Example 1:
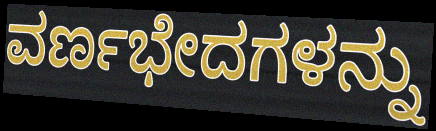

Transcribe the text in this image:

ವರ್ಣಭೇದಗಳನ್ನು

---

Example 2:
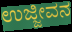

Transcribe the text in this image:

ಉಜ್ಜೀವನ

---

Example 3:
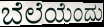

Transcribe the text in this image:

ಬೆಲೆಯೆಂದು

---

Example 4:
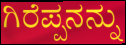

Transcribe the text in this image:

ಗಿರೆಪ್ಪನನ್ನು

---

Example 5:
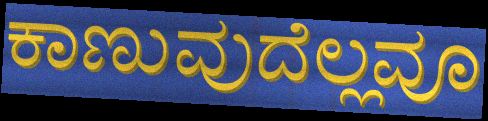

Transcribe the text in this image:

ಕಾಣುವುದೆಲ್ಲವೂ